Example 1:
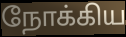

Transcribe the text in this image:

நோக்கிய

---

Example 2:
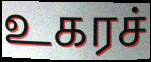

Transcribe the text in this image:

உகரச்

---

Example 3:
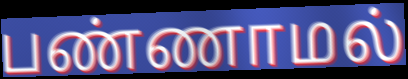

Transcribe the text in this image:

பண்ணாமல்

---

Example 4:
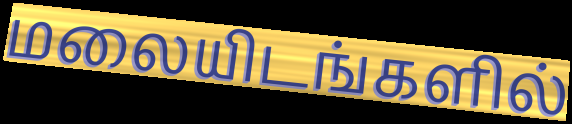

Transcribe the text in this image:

மலையிடங்களில்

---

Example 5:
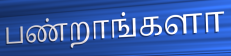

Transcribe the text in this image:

பண்றாங்களா